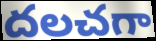
దలచగా